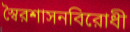
স্বৈরশাসনবিরোধী